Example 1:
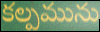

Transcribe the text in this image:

కల్పమును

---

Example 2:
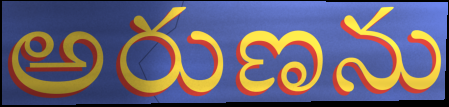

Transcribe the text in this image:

అరుణను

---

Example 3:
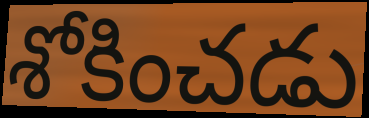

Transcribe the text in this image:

శోకించడు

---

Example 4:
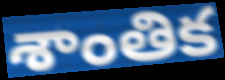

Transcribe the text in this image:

శాంతిక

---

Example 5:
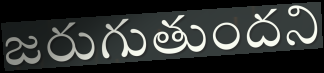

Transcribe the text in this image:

జరుగుతుందని